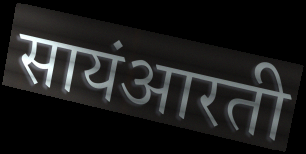
सायंआरती